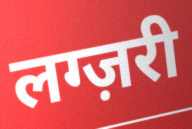
लग्ज़री